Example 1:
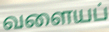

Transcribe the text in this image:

வளையப்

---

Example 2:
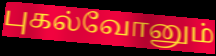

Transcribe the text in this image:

புகல்வோனும்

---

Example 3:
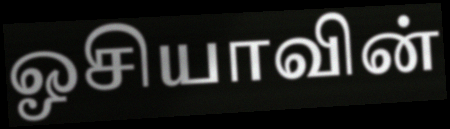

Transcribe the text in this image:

ஓசியாவின்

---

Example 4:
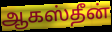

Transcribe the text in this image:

ஆகஸ்தீன்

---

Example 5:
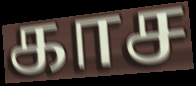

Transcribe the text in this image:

காச